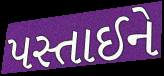
પસ્તાઈને